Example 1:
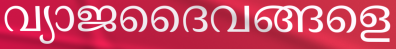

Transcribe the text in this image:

വ്യാജദൈവങ്ങളെ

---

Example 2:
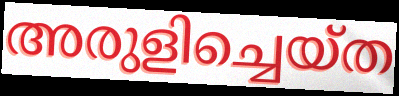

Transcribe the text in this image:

അരുളിച്ചെയ്ത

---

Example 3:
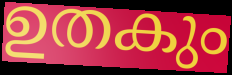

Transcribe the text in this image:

ഉതകും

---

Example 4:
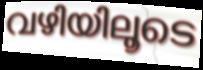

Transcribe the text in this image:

വഴിയിലൂടെ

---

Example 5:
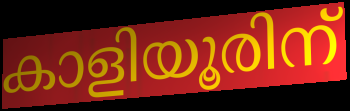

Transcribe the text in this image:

കാളിയൂരിന്